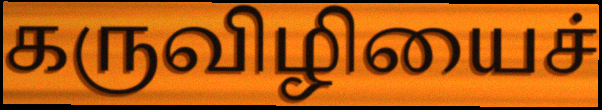
கருவிழியைச்